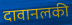
दावानलकी